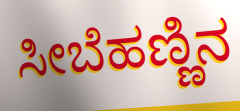
ಸೀಬೆಹಣ್ಣಿನ